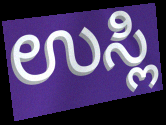
ಉಸ್ಲಿ